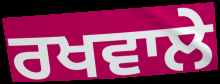
ਰਖਵਾਲੇ